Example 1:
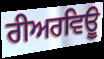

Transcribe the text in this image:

ਰੀਅਰਵਿਊ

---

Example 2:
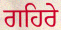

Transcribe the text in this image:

ਗਹਿਰੇ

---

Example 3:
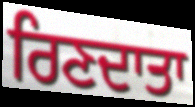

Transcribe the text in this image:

ਰਿਣਦਾਤਾ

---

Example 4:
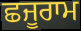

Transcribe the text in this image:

ਛਜੂਰਾਮ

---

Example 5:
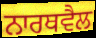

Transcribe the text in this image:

ਨਾਰਥਵੈਲ